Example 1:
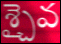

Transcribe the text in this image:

శ్చైవ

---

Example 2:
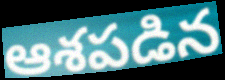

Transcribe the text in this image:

ఆశపడిన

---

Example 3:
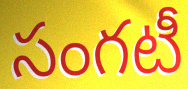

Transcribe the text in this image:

సంగటీ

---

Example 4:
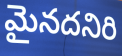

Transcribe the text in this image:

మైనదనిరి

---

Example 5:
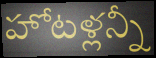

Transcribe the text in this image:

హోటళ్లన్నీ